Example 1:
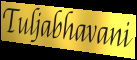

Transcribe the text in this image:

Tuljabhavani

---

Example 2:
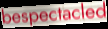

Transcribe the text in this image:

bespectacled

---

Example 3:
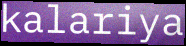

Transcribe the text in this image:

kalariya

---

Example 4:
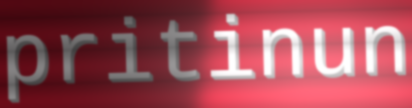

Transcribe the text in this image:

pritinun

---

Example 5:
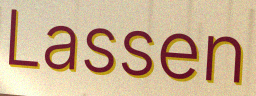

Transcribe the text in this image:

Lassen